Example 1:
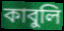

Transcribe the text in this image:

কাবুলি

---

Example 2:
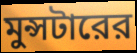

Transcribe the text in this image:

মুন্সটারের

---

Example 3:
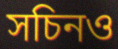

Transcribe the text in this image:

সচিনও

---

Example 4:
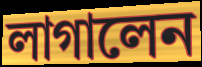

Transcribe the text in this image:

লাগালেন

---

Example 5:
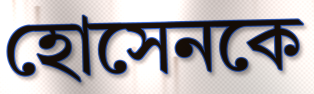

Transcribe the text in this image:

হোসেনকে